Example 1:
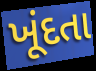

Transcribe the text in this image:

ખૂંદતા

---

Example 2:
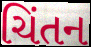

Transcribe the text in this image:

ચિંતન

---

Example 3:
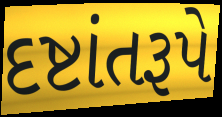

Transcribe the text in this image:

દષ્ટાંતરૂપે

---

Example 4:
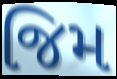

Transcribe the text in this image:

જિમ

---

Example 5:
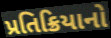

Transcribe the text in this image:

પ્રતિક્રિયાનો